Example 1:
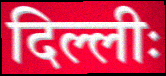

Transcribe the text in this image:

दिल्लीः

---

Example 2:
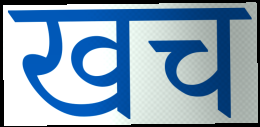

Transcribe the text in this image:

खच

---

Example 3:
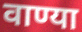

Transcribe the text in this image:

वाण्या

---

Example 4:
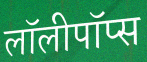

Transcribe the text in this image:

लॉलीपॉप्स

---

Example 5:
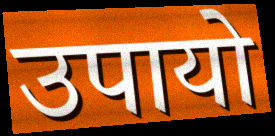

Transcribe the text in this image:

उपायो